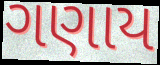
ગણાય